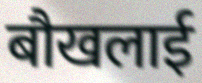
बौखलाई